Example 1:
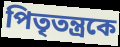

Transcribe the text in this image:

পিতৃতন্ত্রকে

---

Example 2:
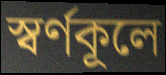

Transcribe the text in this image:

স্বর্ণকূলে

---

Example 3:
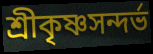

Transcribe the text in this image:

শ্রীকৃষ্ণসন্দর্ভ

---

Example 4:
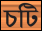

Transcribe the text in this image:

চটি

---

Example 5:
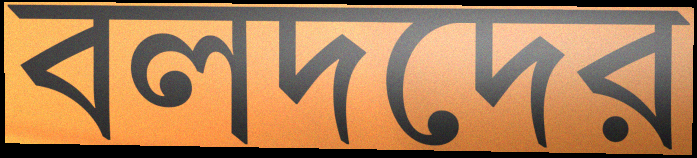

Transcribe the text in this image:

বলদদের